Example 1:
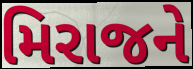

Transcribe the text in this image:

મિરાજને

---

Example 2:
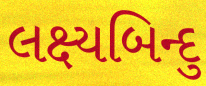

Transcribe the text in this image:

લક્ષ્યબિન્દુ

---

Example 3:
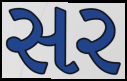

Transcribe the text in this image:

સર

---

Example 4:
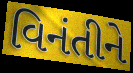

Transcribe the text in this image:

વિનંતીને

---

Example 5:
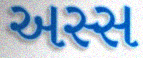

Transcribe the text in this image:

અસ્સ